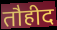
तौहीद